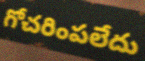
గోచరింపలేదు